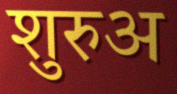
शुरुअ